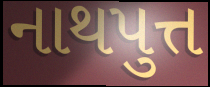
નાથપુત્ત